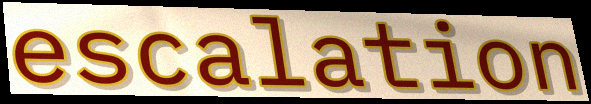
escalation